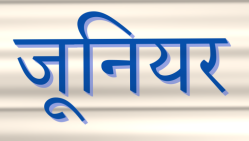
जूनियर